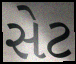
સેટ